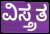
ವಿಸ್ತ್ರತ